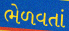
ભેળવતાં